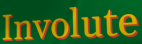
Involute